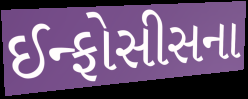
ઈન્ફોસીસના